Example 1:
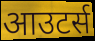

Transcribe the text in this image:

आउटर्स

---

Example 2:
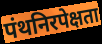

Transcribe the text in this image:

पंथनिरपेक्षता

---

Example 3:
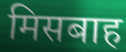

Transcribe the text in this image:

मिसबाह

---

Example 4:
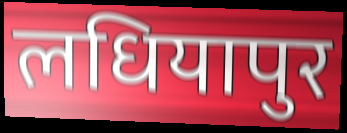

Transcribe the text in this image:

लधियापुर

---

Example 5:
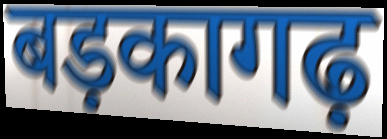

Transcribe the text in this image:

बड़कागढ़